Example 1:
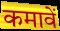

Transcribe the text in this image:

कमावें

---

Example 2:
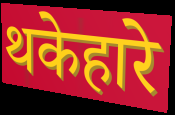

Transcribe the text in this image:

थकेहारे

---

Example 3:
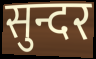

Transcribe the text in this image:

सुन्‍दर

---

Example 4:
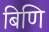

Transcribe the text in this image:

बिणि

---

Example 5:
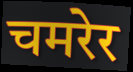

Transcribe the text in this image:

चमरेर